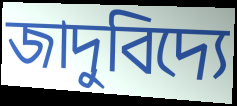
জাদুবিদ্যে